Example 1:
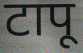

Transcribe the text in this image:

टापू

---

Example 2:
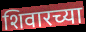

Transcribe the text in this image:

शिवारच्या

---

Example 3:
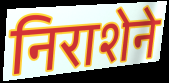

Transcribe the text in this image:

निराशेने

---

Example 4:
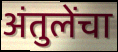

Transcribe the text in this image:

अंतुलेंचा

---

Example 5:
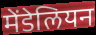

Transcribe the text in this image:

मेंडेलियन